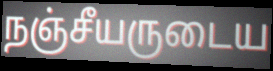
நஞ்சீயருடைய